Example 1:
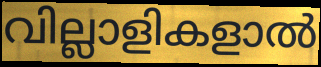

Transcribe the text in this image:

വില്ലാളികളാൽ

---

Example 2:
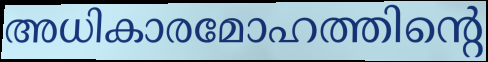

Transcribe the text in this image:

അധികാരമോഹത്തിന്റെ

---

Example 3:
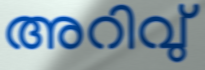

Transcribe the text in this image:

അറിവു്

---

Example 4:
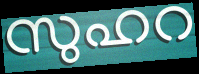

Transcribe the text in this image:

സുഹറ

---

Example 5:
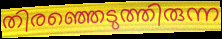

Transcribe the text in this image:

തിരഞ്ഞെടുത്തിരുന്ന